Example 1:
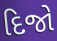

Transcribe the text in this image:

દિજો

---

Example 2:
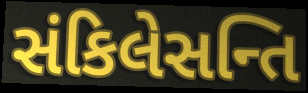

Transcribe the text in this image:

સંકિલેસન્તિ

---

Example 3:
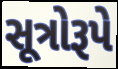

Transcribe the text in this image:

સૂત્રોરૂપે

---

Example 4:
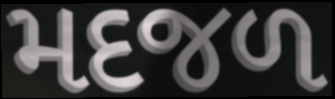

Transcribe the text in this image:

મદજળ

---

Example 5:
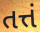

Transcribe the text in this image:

તત્તં